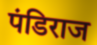
पंडिराज